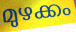
മുഴക്കം